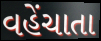
વહેંચાતા